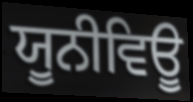
ਯੂਨੀਵਿਊ